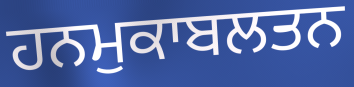
ਹਨਮੁਕਾਬਲਤਨ